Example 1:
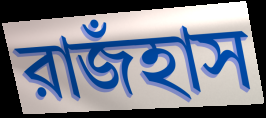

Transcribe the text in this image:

রাজঁহাস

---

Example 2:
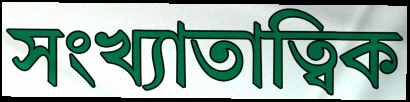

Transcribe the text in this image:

সংখ্যাতাত্বিক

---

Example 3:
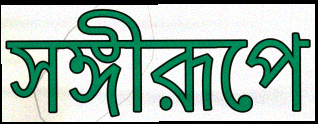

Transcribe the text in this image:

সঙ্গীরূপে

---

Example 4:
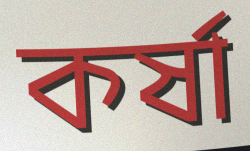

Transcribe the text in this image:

কর্ষা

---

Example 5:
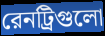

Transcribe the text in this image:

রেনট্রিগুলো